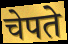
चेपते